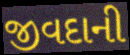
જીવદાની